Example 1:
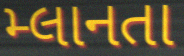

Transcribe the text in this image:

મ્લાનતા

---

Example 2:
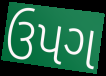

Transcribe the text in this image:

ઉપગ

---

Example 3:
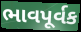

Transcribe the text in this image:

ભાવપૂર્વક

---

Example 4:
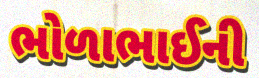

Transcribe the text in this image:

ભોળાભાઈની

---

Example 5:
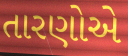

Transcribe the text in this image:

તારણોએ